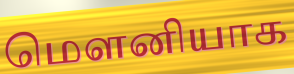
மெளனியாக